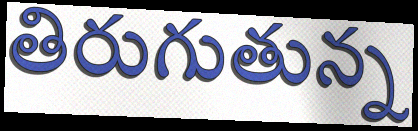
తిరుగుతున్న